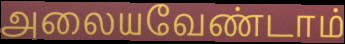
அலையவேண்டாம்